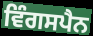
ਵਿੰਗਸਪੈਨ